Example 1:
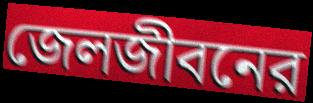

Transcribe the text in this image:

জেলজীবনের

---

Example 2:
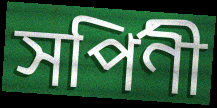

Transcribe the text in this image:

সর্পিণী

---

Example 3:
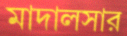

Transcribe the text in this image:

মাদালসার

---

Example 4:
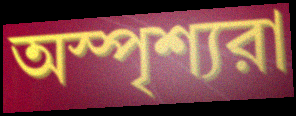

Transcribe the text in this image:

অস্পৃশ্যরা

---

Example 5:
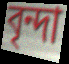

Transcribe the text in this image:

বৃন্দা